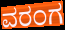
ವರಂಗ